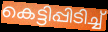
കെട്ടിപ്പിടിച്ച്